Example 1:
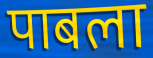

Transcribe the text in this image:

पाबला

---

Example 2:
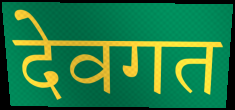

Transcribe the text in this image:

देवगत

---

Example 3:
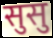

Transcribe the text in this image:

सुसु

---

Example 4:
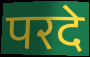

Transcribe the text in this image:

परदे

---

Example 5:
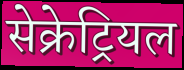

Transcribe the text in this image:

सेक्रेट्रियल